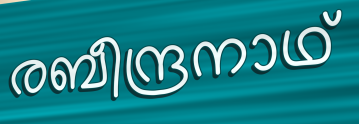
രബീന്ദ്രനാഥ്